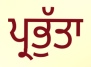
ਪ੍ਰਭੁੱਤਾ